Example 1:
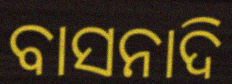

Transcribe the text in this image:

ବାସନାଦି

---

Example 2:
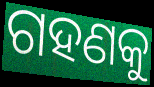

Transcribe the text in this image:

ଗହଣକୁ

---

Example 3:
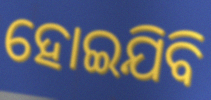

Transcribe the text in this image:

ହୋଇଯିବି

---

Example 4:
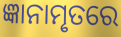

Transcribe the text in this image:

ଜ୍ଞାନାମୃତରେ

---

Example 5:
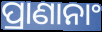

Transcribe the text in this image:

ପ୍ରାଣାନାଂ